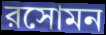
রসোমন